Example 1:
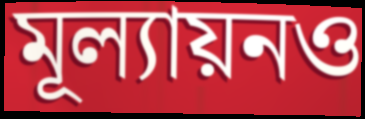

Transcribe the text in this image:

মূল্যায়নও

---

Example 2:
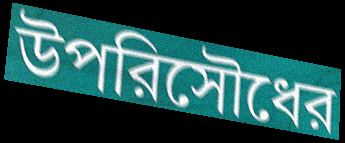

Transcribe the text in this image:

উপরিসৌধের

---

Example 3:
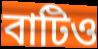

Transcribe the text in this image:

বাটিও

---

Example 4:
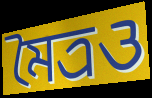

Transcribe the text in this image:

মৈত্রও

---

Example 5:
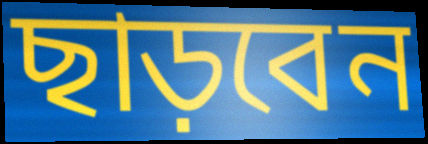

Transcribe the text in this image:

ছাড়বেন